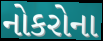
નોકરોના